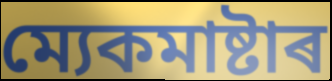
ম্যেকমাষ্টাৰ